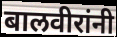
बालवीरांनी